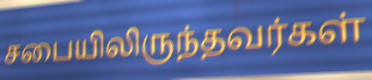
சபையிலிருந்தவர்கள்